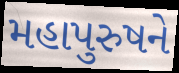
મહાપુરુષને